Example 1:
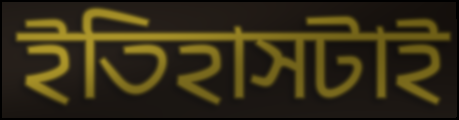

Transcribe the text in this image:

ইতিহাসটাই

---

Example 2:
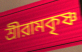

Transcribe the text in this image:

শ্রীরামকৃষ্ণ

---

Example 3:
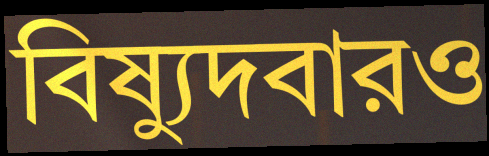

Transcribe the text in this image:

বিষ্যুদবারও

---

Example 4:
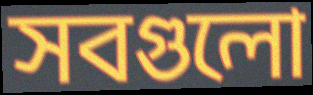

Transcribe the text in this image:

সবগুলো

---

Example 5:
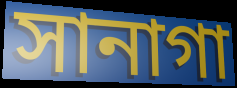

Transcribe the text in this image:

সানাগা